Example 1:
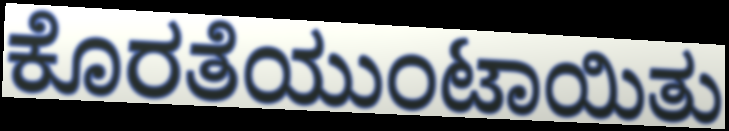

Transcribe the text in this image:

ಕೊರತೆಯುಂಟಾಯಿತು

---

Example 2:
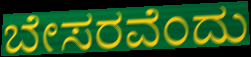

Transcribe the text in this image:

ಬೇಸರವೆಂದು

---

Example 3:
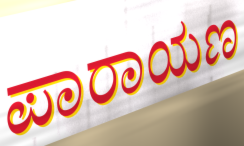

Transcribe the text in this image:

ಪಾರಾಯಣ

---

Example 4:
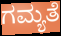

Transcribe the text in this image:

ಗಮ್ಯತೆ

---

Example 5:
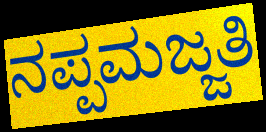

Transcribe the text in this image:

ನಪ್ಪಮಜ್ಜತಿ